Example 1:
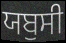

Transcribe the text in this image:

ਯਬੁਸੀ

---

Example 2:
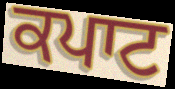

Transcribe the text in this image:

ਕਪਾਟ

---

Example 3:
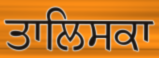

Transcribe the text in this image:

ਤਾਲਿਸਕਾ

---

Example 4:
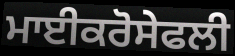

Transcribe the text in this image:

ਮਾਈਕਰੋਸੇਫਲੀ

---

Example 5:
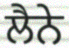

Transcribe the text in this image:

ਲੈਨੇ